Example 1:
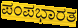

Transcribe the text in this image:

ಪಂಪಭಾರತ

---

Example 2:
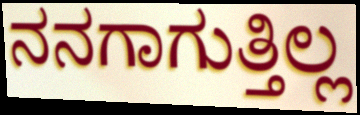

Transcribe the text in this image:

ನನಗಾಗುತ್ತಿಲ್ಲ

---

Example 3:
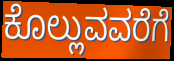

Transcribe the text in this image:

ಕೊಲ್ಲುವವರೆಗೆ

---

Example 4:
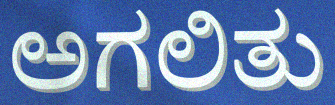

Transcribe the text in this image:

ಅಗಲಿತು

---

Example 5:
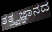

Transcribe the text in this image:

ತತ್ತ್ವಜ್ಞಾನದ